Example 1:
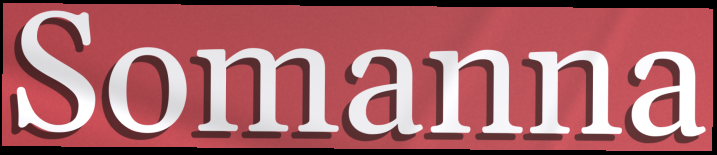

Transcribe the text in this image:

Somanna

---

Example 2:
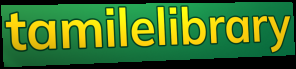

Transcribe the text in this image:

tamilelibrary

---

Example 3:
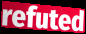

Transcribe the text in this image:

refuted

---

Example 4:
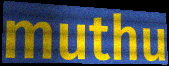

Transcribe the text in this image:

muthu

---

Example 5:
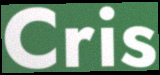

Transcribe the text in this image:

Cris